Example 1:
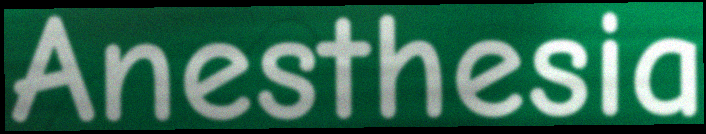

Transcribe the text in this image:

Anesthesia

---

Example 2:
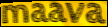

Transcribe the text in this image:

maava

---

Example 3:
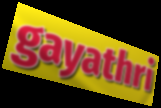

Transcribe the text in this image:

gayathri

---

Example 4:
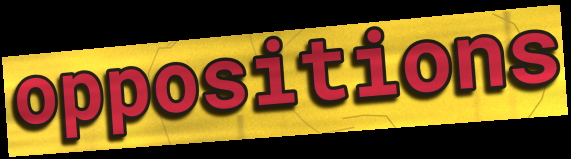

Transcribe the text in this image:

oppositions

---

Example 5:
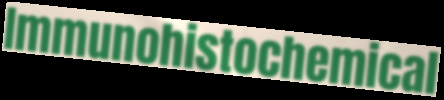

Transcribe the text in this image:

Immunohistochemical